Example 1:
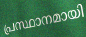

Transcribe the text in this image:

പ്രസ്ഥാനമായി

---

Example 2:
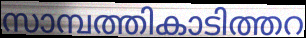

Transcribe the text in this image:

സാമ്പത്തികാടിത്തറ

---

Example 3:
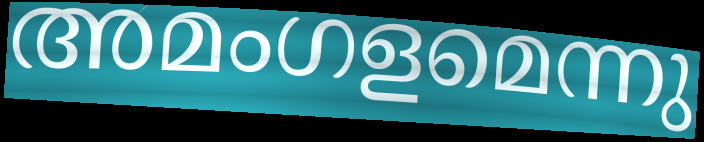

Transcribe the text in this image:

അമംഗളമെന്നു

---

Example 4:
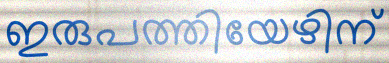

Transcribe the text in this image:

ഇരുപത്തിയേഴിന്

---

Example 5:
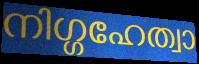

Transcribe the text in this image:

നിഗ്ഗഹേത്വാ